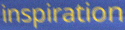
inspiration